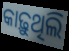
କାଢ଼ୁଥିଲି